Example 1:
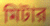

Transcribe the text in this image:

মিটার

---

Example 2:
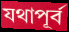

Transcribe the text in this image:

যথাপূর্ব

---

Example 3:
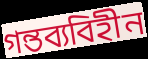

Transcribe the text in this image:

গন্তব্যবিহীন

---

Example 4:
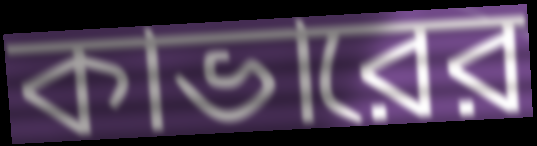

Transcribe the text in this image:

কাভারের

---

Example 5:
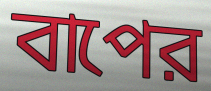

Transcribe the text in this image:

বাপের